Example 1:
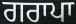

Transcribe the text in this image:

ਗਰਾਪਾ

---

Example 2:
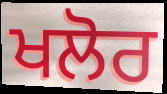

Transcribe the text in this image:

ਖਲੋਰ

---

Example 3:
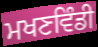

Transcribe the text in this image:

ਮਖਣਵਿੰਡੀ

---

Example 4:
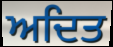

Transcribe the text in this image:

ਅਦਿਤ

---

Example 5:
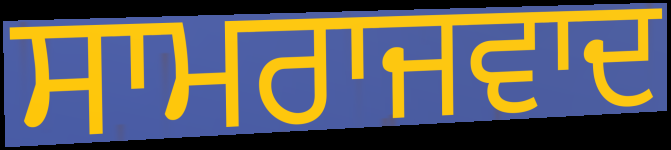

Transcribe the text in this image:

ਸਾਮਰਾਜਵਾਦ